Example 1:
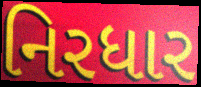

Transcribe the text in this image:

નિરધાર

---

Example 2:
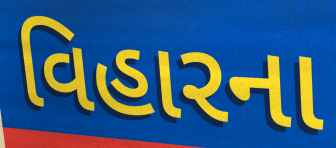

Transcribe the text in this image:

વિહારના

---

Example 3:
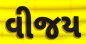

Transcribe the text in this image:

વીજય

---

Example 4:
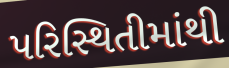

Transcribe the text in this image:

પરિસ્થિતીમાંથી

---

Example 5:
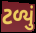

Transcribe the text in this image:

ટળ્યું